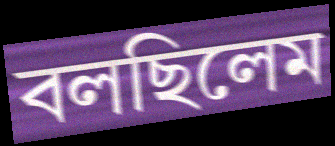
বলছিলেম